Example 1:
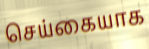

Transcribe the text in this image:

செய்கையாக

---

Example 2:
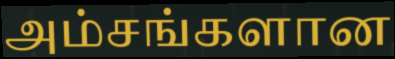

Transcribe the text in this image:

அம்சங்களான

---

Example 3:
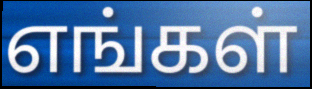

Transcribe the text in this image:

எங்கள்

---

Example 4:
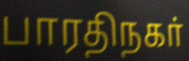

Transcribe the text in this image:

பாரதிநகர்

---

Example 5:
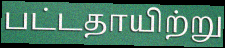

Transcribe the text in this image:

பட்டதாயிற்று